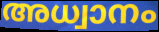
അധ്വാനം